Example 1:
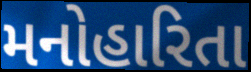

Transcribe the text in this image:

મનોહારિતા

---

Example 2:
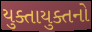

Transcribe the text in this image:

યુક્તાયુક્તનો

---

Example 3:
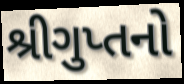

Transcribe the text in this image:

શ્રીગુપ્તનો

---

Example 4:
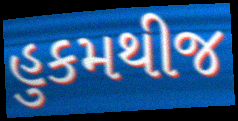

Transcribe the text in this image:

હુકમથીજ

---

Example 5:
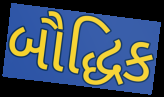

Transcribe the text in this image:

બૌદ્ધિક